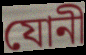
যোনী